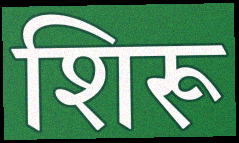
शिरू